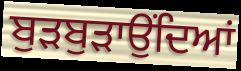
ਬੁੜਬੁੜਾਉਂਦਿਆਂ